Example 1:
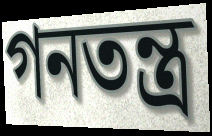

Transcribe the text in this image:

গনতন্ত্র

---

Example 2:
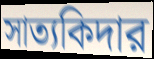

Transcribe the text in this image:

সাত্যকিদার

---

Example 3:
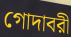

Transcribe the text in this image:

গোদাবরী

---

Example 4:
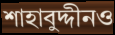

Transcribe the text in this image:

শাহাবুদ্দীনও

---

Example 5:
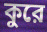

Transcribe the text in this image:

কুরে